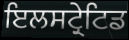
ਇਲਸਟ੍ਰੇਟਿਡ